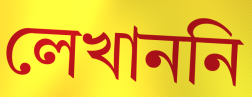
লেখাননি